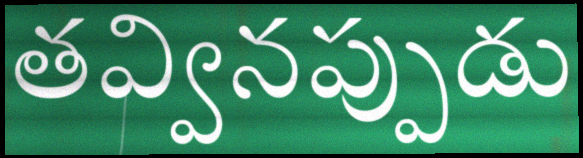
తవ్వినప్పుడు